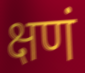
क्षणं